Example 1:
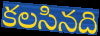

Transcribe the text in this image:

కలసినది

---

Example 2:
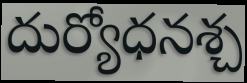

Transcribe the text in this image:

దుర్యోధనశ్చ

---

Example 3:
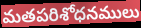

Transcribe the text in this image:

మతపరిశోధనములు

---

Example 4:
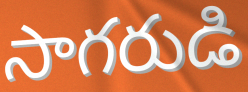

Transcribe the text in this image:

సాగరుడి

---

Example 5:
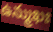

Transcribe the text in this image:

ఉన్ముఖః